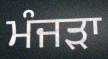
ਮੰਜੜਾ